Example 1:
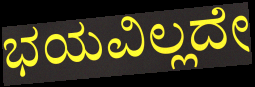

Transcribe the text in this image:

ಭಯವಿಲ್ಲದೇ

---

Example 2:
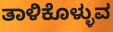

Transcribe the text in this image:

ತಾಳಿಕೊಳ್ಳುವ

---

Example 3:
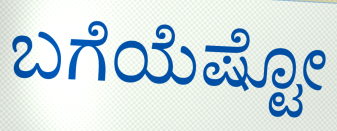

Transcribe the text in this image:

ಬಗೆಯೆಷ್ಟೋ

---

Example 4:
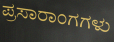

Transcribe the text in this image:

ಪ್ರಸಾರಾಂಗಗಳು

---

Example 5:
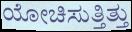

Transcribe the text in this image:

ಯೋಚಿಸುತ್ತಿತ್ತು